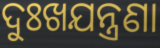
ଦୁଃଖଯନ୍ତ୍ରଣା